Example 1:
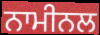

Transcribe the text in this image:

ਨਾਮੀਨਲ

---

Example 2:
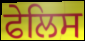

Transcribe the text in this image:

ਫੇਲਿਸ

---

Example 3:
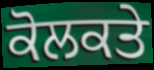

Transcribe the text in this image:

ਕੋਲਕਤੇ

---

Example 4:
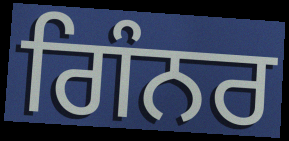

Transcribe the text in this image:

ਗਿੰਨਰ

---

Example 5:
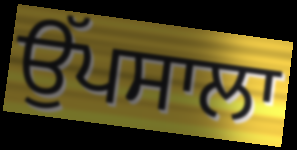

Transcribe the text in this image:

ਉੱਪਸਾਲਾ